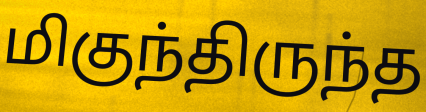
மிகுந்திருந்த